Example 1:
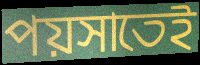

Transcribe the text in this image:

পয়সাতেই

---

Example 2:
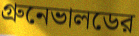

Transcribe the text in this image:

গ্রুনেভালডের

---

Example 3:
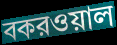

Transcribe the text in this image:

বকরওয়াল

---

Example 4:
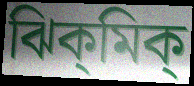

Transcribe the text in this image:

ঝিক্‌মিক্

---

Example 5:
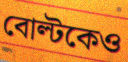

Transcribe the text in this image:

বোল্টকেও